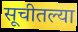
सूचीतल्या